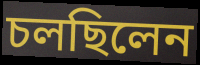
চলছিলেন